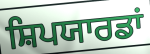
ਸ਼ਿਪਯਾਰਡਾਂ